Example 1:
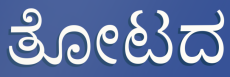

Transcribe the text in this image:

ತೋಟದ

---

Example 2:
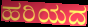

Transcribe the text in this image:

ಹರಿಯದ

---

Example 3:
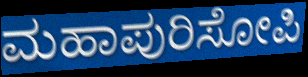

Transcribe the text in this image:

ಮಹಾಪುರಿಸೋಪಿ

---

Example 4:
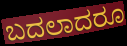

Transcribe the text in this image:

ಬದಲಾದರೂ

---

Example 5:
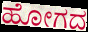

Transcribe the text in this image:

ಹೋಗದ